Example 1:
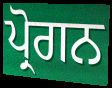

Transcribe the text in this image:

ਪ੍ਰੋਗਨ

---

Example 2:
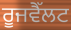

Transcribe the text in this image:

ਰੂਜਵੈੱਲਟ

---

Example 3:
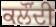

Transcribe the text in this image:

ਕਲੌਂਦੀ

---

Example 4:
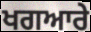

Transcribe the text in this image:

ਖਗਆਰੇ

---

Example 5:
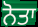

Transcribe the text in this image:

ਨੋਤਾ